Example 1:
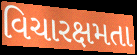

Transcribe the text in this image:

વિચારક્ષમતા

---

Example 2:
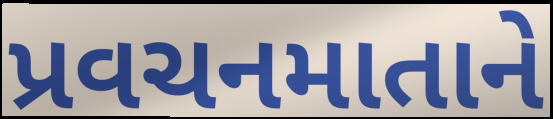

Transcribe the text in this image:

પ્રવચનમાતાને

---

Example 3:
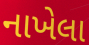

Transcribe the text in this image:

નાખેલા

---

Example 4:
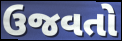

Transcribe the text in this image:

ઉજવતો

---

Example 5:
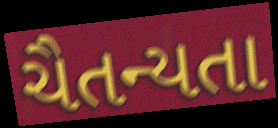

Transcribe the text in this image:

ચૈતન્યતા